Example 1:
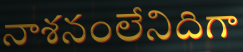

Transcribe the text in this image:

నాశనంలేనిదిగా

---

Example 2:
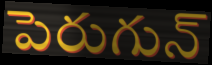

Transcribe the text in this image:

పెరుగున్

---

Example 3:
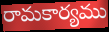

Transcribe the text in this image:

రామకార్యము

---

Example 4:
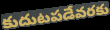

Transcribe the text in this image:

కుదుటపడేవరకు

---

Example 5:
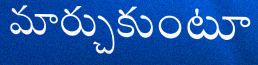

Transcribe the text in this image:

మార్చుకుంటూ